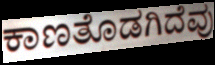
ಕಾಣತೊಡಗಿದೆವು